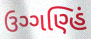
ઉગ્ગણ્હિં